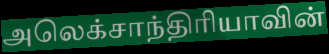
அலெக்சாந்திரியாவின்